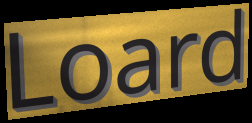
Loard